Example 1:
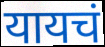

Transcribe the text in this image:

यायचं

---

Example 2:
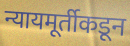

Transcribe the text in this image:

न्यायमूर्तीकडून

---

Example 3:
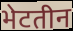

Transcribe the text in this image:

भेटतीन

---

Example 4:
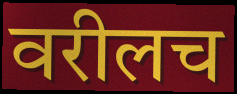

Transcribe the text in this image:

वरीलच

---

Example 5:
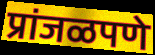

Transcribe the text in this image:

प्रांजळपणे